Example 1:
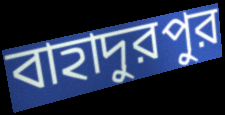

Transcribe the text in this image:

বাহাদুরপুর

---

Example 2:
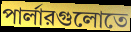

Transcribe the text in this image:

পার্লারগুলোতে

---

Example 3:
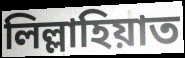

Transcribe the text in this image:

লিল্লাহিয়াত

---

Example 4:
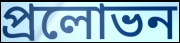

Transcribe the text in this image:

প্রলোভন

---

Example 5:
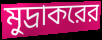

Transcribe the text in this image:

মুদ্রাকরের